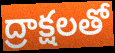
ద్రాక్షలతో